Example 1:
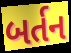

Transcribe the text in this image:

બર્તન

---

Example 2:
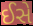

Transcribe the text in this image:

ઈસે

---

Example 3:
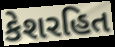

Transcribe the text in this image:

કેશરહિત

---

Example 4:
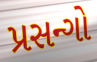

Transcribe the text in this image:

પ્રસન્ગો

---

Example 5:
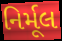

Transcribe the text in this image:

નિર્મૂલ